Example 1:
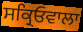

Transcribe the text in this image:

ਸਕ੍ਰਿਓਵਾਲਾ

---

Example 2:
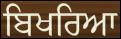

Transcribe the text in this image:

ਬਿਖਰਿਆ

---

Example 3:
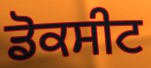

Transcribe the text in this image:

ਡੋਕਸੀਟ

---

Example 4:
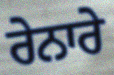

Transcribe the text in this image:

ਰੇਨਾਰੇ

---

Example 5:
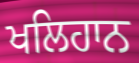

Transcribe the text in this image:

ਖਲਿਹਾਨ